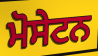
ਮੋਸੇਟਨ